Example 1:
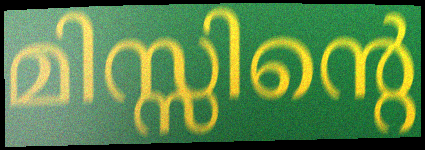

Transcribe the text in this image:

മിസ്സിന്റെ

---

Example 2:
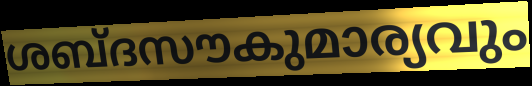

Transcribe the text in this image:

ശബ്ദസൗകുമാര്യവും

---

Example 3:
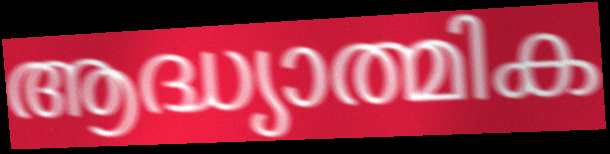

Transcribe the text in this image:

ആദ്ധ്യാത്മിക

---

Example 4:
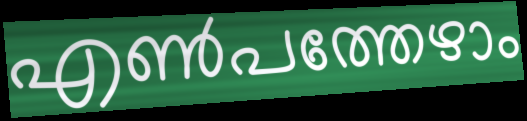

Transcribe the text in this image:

എൺപത്തേഴാം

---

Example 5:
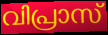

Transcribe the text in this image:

വിപ്രാസ്